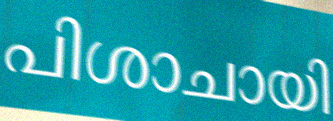
പിശാചായി